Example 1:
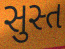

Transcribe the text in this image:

સુસ્ત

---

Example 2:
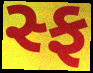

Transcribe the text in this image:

સ્ફ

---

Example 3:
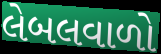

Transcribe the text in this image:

લેબલવાળો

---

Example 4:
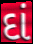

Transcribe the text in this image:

દાં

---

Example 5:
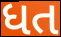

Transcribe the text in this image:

ધત